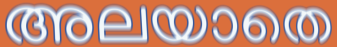
അലയാതെ